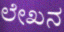
ಲೇಖನ